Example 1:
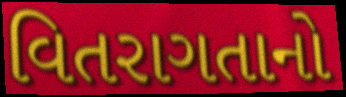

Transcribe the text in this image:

વિતરાગતાનો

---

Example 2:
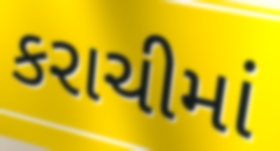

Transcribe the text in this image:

કરાચીમાં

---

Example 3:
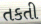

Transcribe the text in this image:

તકતી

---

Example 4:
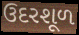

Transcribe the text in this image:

ઉદરશૂળ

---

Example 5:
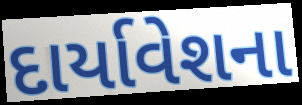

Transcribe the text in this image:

દાર્યાવેશના